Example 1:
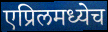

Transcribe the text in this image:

एप्रिलमध्येच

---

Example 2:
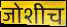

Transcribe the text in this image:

जोशीच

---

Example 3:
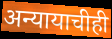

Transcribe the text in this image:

अन्यायाचीही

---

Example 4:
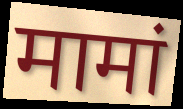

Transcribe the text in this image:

मामां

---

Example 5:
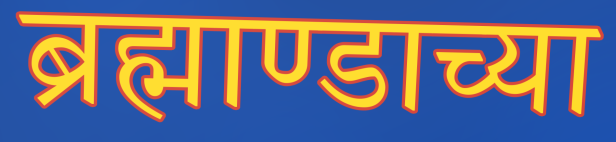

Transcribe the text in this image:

ब्रह्माण्डाच्या